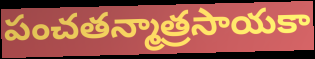
పంచతన్మాత్రసాయకా